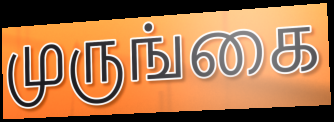
முருங்கை